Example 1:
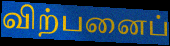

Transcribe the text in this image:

விற்பனைப்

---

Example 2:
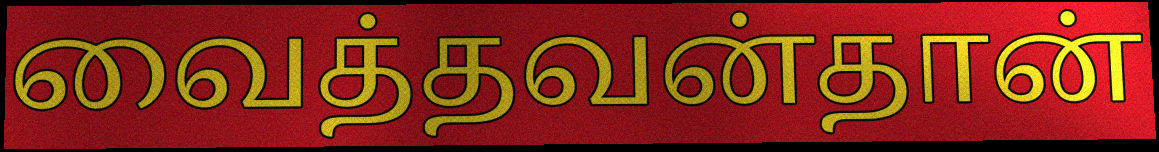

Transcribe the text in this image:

வைத்தவன்தான்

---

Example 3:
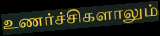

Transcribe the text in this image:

உணர்ச்சிகளாலும்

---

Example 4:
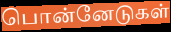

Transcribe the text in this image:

பொன்னேடுகள்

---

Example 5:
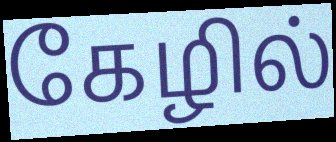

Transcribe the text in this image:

கேழில்